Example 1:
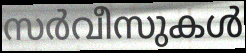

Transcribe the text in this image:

സർവീസുകൾ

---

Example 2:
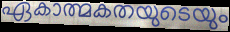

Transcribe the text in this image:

ഏകാത്മകതയുടെയും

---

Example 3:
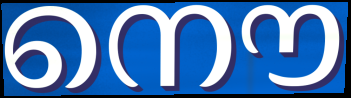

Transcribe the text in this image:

നൌ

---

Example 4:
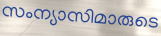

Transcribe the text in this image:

സംന്യാസിമാരുടെ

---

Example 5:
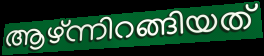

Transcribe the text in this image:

ആഴ്ന്നിറങ്ങിയത്